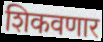
शिकवणार